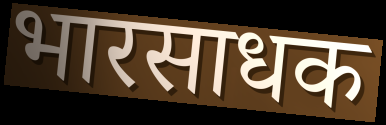
भारसाधक